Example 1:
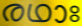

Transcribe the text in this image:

രഥാഃ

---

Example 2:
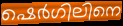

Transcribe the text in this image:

ഷെർഗിലിനെ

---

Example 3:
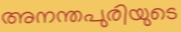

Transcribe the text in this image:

അനന്തപുരിയുടെ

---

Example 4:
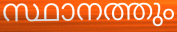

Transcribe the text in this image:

സ്ഥാനത്തും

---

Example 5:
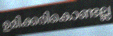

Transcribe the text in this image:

ഉമിക്കരികൊണ്ടല്ല